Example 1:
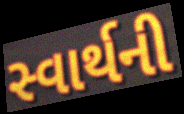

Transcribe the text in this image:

સ્વાર્થની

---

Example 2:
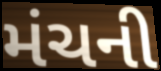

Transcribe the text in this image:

મંચની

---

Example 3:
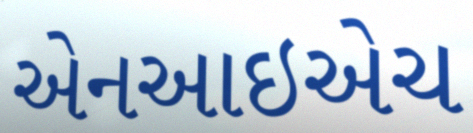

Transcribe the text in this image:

એનઆઇએચ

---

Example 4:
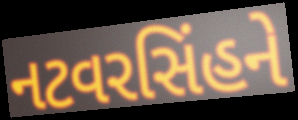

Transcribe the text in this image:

નટવરસિંહને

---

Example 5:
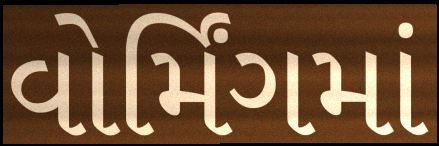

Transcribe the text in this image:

વોર્મિંગમાં